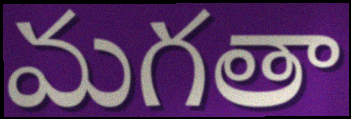
మగతా